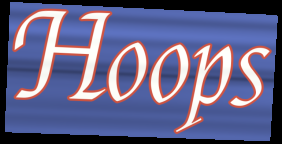
Hoops